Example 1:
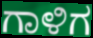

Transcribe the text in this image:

ಗಾಳಿಗ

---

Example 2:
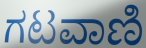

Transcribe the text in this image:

ಗಟವಾಣಿ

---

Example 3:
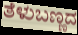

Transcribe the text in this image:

ತೆಳುಬಣ್ಣದ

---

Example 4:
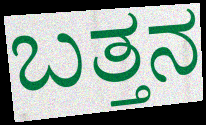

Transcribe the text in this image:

ಬತ್ತನ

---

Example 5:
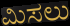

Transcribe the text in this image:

ಮಿಸಲು